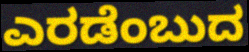
ಎರಡೆಂಬುದ